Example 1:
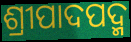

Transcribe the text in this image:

ଶ୍ରୀପାଦପଦ୍ମ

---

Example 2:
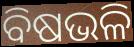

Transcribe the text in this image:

ବିଷଭଳି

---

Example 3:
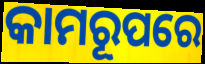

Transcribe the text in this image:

କାମରୂପରେ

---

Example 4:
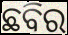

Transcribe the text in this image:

ଛବିର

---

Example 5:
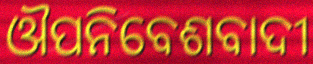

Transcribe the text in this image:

ଔପନିବେଶବାଦୀ